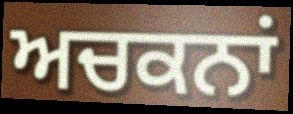
ਅਚਕਨਾਂ